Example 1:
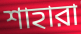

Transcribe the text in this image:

শাহারা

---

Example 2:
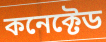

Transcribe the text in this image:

কনেক্টেড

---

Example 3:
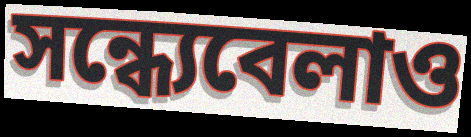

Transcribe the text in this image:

সন্ধ্যেবেলাও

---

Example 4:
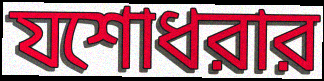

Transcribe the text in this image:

যশোধরার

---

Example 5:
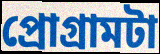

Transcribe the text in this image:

প্রোগ্রামটা